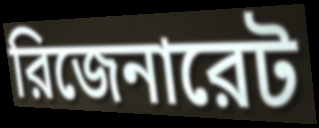
রিজেনারেট